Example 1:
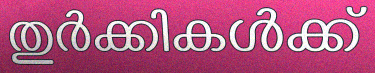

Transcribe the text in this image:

തുർക്കികൾക്ക്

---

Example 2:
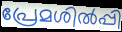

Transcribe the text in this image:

പ്രേമശിൽപ്പി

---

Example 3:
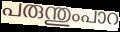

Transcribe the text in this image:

പരുന്തുംപാറ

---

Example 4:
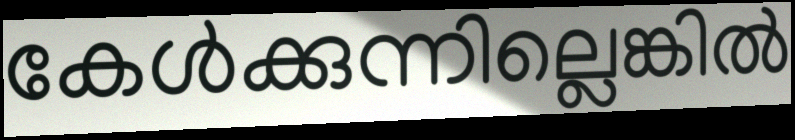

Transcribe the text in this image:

കേൾക്കുന്നില്ലെങ്കിൽ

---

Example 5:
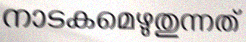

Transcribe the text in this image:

നാടകമെഴുതുന്നത്